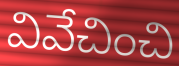
వివేచించి